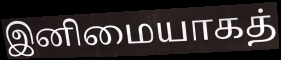
இனிமையாகத்